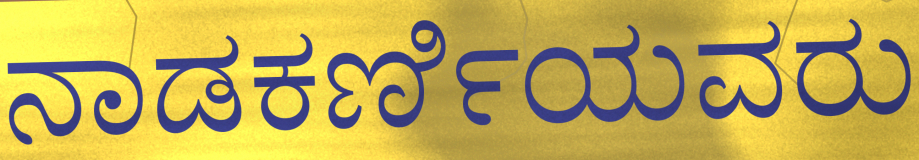
ನಾಡಕರ್ಣಿಯವರು